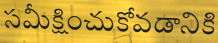
సమీక్షించుకోవడానికి